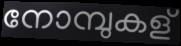
നോമ്പുകള്